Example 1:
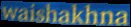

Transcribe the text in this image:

waishakhna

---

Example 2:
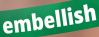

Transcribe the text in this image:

embellish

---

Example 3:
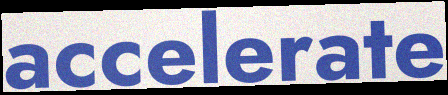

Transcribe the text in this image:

accelerate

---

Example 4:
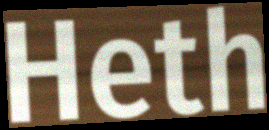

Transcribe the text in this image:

Heth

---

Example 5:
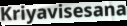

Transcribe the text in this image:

Kriyavisesana